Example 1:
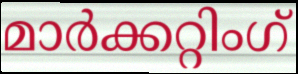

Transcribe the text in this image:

മാർക്കറ്റിംഗ്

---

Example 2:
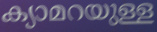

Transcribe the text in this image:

ക്യാമറയുള്ള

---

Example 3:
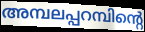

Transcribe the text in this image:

അമ്പലപ്പറമ്പിന്റെ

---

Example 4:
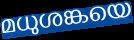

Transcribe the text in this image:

മധുശങ്കയെ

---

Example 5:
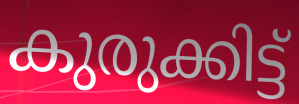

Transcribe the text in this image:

കുരുക്കിട്ട്